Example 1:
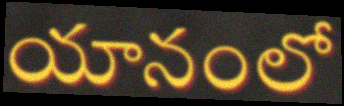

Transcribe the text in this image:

యానంలో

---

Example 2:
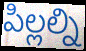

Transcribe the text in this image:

పిల్లల్ని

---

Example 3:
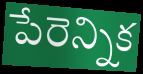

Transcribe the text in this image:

పేరెన్నిక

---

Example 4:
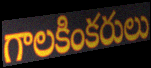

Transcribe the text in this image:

గాలకింకరులు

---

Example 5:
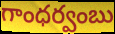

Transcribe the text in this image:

గాంధర్వంబు